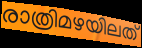
രാത്രിമഴയിലത്